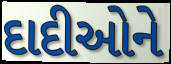
દાદીઓને